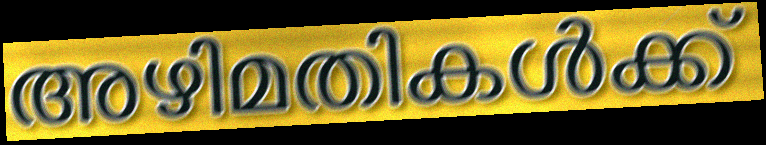
അഴിമതികൾക്ക്